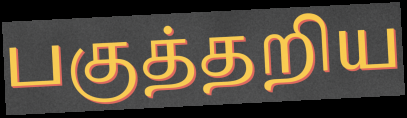
பகுத்தறிய